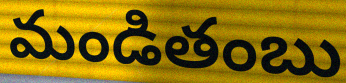
మండితంబు